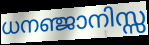
ധനഞ്ജാനിസ്സ